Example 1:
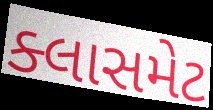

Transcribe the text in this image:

ક્લાસમેટ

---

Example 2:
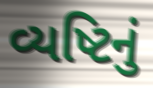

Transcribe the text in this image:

વ્યષ્ટિનું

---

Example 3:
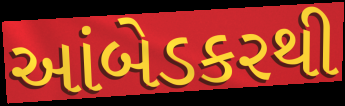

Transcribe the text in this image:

આંબેડકરથી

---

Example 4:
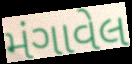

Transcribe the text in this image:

મંગાવેલ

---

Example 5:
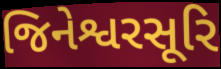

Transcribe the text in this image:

જિનેશ્વરસૂરિ